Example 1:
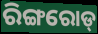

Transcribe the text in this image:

ରିଙ୍ଗରୋଡ୍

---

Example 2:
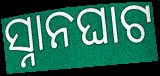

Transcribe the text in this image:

ସ୍ନାନଘାଟ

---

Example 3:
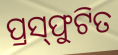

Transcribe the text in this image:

ପ୍ରସ୍‌ଫୁଟିତ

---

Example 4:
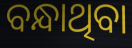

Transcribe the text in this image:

ବନ୍ଧାଥିବା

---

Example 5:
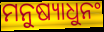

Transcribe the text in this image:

ମନୁଷ୍ୟାଧୁନଂ